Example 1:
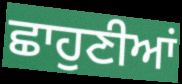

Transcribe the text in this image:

ਛਾਹੁਣੀਆਂ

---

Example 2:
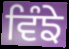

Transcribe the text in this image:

ਵਿੰਙੇ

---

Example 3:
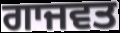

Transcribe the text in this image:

ਗਾਜਵਤ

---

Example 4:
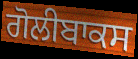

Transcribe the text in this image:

ਗੋਲੀਬਾਕਸ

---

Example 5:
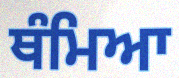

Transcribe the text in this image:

ਥੰਮਿਆ